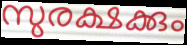
സുരക്ഷക്കും